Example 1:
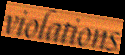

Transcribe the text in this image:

violations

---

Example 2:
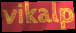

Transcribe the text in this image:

vikalp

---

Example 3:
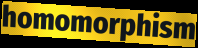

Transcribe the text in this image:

homomorphism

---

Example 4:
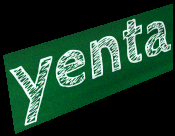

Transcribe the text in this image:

yenta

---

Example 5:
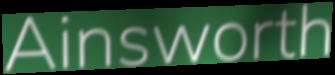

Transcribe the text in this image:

Ainsworth